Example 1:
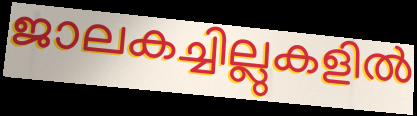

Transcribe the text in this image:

ജാലകച്ചില്ലുകളിൽ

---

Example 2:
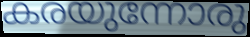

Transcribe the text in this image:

കരയുന്നോരു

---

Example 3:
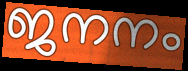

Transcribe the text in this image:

ജനനം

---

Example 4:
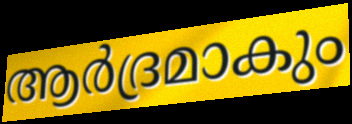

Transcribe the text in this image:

ആർദ്രമാകും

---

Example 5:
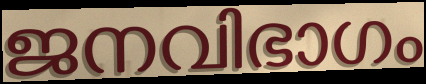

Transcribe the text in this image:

ജനവിഭാഗം